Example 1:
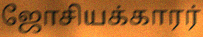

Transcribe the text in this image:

ஜோசியக்காரர்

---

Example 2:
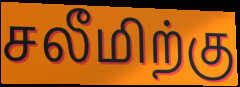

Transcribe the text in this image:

சலீமிற்கு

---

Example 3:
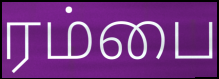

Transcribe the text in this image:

ரம்பை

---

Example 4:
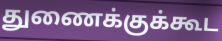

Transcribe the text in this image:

துணைக்குக்கூட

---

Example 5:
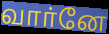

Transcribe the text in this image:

வார்னே